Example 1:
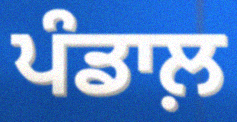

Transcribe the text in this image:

ਪੰਡਾਲ਼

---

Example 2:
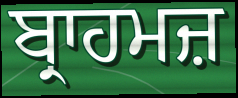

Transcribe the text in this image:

ਬ੍ਰਾਹਮਜ਼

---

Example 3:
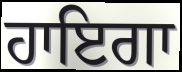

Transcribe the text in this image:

ਹਾਇਗਾ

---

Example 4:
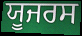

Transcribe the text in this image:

ਯੂਜਰਸ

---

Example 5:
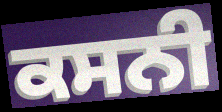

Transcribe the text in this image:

ਕਸਨੀ